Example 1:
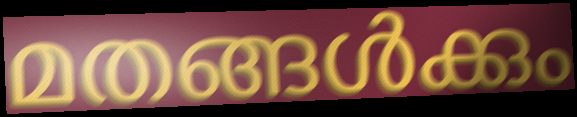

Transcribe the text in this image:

മതങ്ങൾക്കും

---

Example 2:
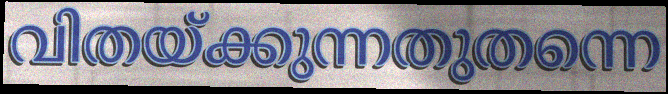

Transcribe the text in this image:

വിതയ്ക്കുന്നതുതന്നെ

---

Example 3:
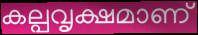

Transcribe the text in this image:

കല്പവൃക്ഷമാണ്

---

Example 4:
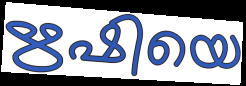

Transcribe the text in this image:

ഋഷിയെ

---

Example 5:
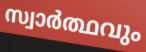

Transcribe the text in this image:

സ്വാർത്ഥവും